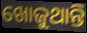
ଖୋଜୁଥାନ୍ତି